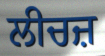
ਲੀਚਜ਼